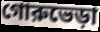
গোরুভেড়া